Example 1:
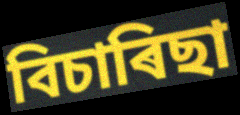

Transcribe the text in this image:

বিচাৰিছা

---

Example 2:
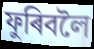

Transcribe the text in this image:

ফুৰিবলৈ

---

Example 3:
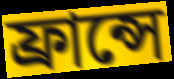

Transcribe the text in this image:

ফ্ৰান্সে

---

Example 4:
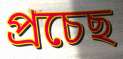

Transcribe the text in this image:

প্ৰচেছ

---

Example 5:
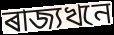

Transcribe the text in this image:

ৰাজ্যখনে